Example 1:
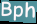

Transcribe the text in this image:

Bph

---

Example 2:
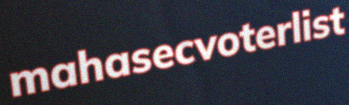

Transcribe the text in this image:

mahasecvoterlist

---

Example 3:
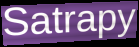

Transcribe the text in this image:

Satrapy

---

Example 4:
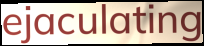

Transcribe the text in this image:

ejaculating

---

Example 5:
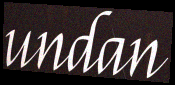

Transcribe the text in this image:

undan